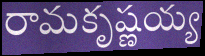
రామకృష్ణయ్య